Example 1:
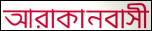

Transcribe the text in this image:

আরাকানবাসী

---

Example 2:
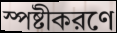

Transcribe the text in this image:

স্পষ্টীকরণে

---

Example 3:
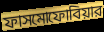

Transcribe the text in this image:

ফাসমোফোবিয়ার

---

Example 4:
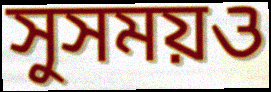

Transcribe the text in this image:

সুসময়ও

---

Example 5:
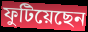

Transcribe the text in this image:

ফুটিয়েছেন